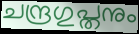
ചന്ദ്രഗുപ്തനും